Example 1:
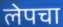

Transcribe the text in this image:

लेपचा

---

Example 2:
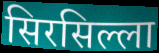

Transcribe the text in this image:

सिरसिल्ला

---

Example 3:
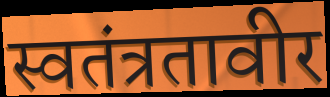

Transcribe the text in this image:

स्वतंत्रतावीर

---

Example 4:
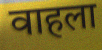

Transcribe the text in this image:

वाहला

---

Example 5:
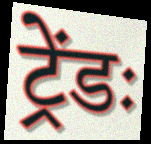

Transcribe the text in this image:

ट्रेंडः